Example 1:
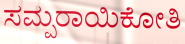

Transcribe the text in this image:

ಸಮ್ಪರಾಯಿಕೋತಿ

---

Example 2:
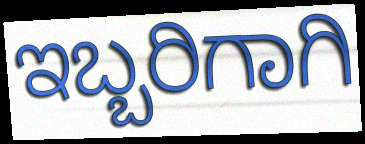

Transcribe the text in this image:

ಇಬ್ಬರಿಗಾಗಿ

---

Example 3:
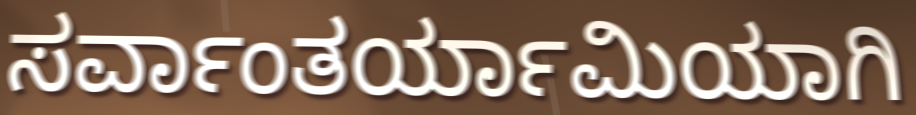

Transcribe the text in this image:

ಸರ್ವಾಂತರ್ಯಾಮಿಯಾಗಿ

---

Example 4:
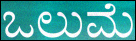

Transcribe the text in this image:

ಒಲುಮೆ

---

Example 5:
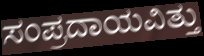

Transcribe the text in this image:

ಸಂಪ್ರದಾಯವಿತ್ತು